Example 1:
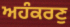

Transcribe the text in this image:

ਅਹੰਕਰਣੁ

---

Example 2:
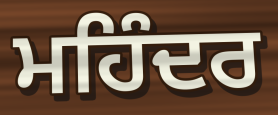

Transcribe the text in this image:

ਮਹਿੰਦਰ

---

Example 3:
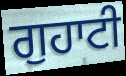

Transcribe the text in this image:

ਗੁਹਾਟੀ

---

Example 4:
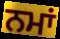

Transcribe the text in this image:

ਨਮਾਂ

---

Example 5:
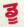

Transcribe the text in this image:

ਡੂ